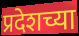
प्रदेशच्या